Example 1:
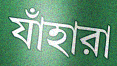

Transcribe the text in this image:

যাঁহারা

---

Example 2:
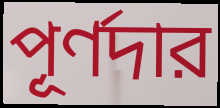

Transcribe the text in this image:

পূর্ণদার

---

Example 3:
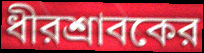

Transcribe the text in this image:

ধীরশ্রাবকের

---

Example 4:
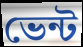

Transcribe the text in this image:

ভেন্ট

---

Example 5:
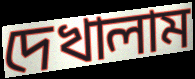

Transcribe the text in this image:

দেখালাম